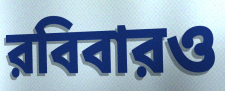
রবিবারও